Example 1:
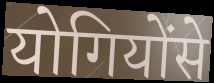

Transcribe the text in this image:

योगियोंसे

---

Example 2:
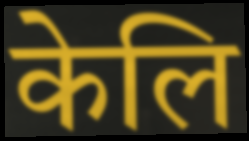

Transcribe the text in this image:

केलि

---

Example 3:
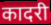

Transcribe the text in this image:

कादरी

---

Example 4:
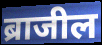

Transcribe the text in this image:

ब्राजील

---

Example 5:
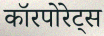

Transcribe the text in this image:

कॉरपोरेट्स